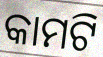
କାମଟି